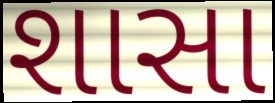
શાસા